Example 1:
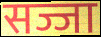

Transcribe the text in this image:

सज्जा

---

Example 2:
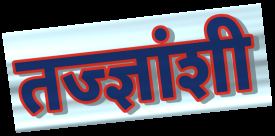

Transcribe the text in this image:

तज्ज्ञांशी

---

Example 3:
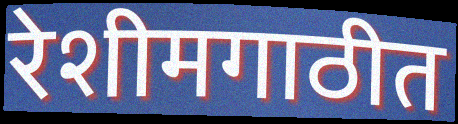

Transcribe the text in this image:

रेशीमगाठीत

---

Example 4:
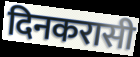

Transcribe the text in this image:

दिनकरासी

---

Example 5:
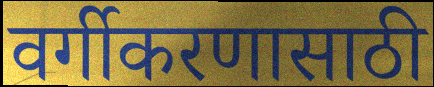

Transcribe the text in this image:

वर्गीकरणासाठी